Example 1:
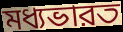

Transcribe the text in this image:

মধ্যভারত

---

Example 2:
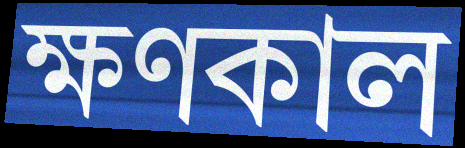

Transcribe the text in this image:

ক্ষণকাল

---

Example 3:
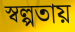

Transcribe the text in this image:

স্বল্পতায়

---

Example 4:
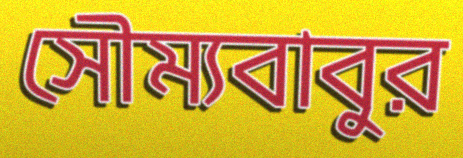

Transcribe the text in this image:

সৌম্যবাবুর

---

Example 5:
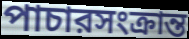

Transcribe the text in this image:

পাচারসংক্রান্ত